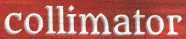
collimator